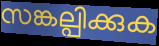
സങ്കല്പിക്കുക